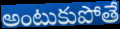
అంటుకుపోతే